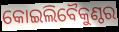
କୋଇଲିବୈକୁଣ୍ଠର